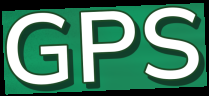
GPS